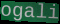
ogali